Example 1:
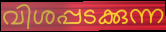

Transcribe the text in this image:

വിശപ്പടക്കുന്ന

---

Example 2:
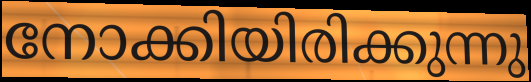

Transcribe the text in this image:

നോക്കിയിരിക്കുന്നു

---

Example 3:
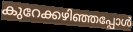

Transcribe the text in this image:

കുറേക്കഴിഞ്ഞപ്പോൾ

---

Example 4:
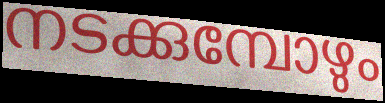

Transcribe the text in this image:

നടക്കുമ്പോഴും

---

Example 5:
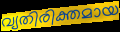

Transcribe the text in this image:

വ്യതിരിക്തമായ